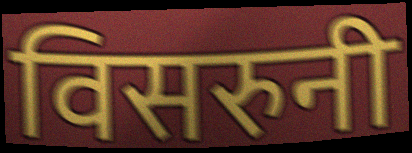
विसरुनी